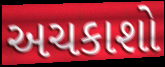
અચકાશો